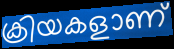
ക്രിയകളാണ്